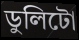
ডুলিটো